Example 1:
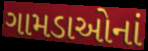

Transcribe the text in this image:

ગામડાઓનાં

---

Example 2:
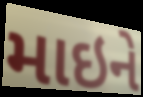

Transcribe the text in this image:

માઇને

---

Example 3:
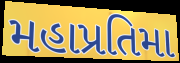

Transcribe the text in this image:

મહાપ્રતિમા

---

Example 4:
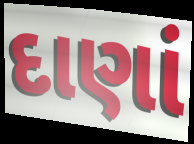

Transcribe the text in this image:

દાણાં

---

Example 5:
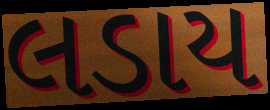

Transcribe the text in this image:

લડાય